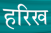
हरिख